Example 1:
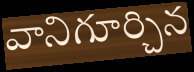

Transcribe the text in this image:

వానిగూర్చిన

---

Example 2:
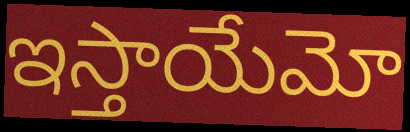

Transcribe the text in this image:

ఇస్తాయేమో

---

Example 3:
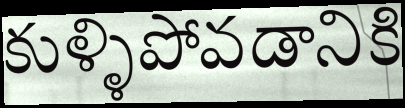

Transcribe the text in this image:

కుళ్ళిపోవడానికి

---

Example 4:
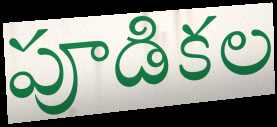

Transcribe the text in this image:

పూడికల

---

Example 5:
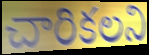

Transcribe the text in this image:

చారికలని